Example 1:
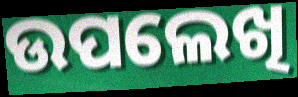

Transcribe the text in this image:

ଉପଲେଖି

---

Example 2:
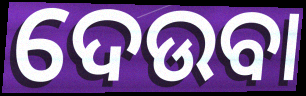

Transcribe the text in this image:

ଦେଉବା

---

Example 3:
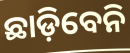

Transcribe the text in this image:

ଛାଡ଼ିବେନି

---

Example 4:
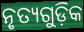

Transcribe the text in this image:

ନୃତ୍ୟଗୁଡ଼ିକ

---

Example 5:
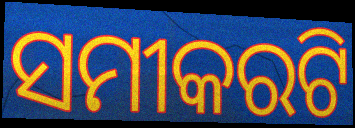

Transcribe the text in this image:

ସମୀକରଟି